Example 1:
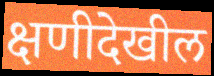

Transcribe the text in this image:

क्षणीदेखील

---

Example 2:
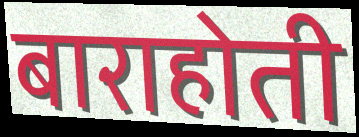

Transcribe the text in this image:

बाराहोती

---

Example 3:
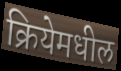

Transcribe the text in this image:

क्रियेमधील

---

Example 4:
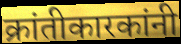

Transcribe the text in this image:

क्रांतीकारकांनी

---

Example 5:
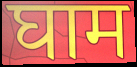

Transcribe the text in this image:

घाम